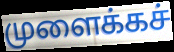
முளைக்கச்